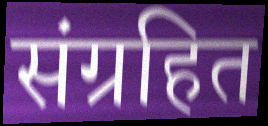
संग्रहित